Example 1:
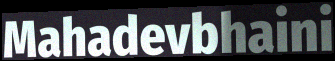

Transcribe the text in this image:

Mahadevbhaini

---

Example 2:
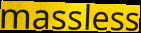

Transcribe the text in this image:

massless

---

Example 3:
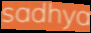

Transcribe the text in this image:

sadhya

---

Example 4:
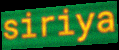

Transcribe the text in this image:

siriya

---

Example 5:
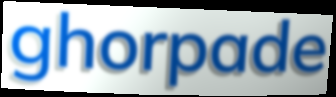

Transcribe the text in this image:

ghorpade